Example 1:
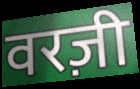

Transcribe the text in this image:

वरज़ी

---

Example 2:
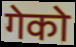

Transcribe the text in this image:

गेको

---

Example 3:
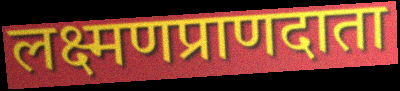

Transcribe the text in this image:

लक्ष्मणप्राणदाता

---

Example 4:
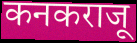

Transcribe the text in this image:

कनकराजू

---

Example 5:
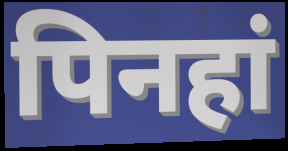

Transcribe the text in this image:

पिनहां